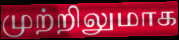
முற்றிலுமாக